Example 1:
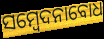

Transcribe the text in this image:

ସମ୍ବେଦନାବୋଧ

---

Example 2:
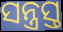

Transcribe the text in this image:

ସନ୍ତ୍ରସ୍ତ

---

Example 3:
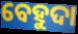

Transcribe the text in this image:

ବେହୁଦା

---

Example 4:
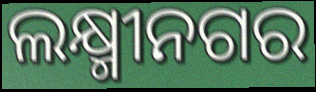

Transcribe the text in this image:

ଲକ୍ଷ୍ମୀନଗର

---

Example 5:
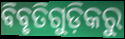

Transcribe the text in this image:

ବିବୃତିଗୁଡ଼ିକରୁ